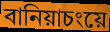
বানিয়াচংয়ে